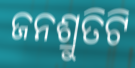
ଜନଶ୍ରୁତିଟି